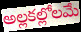
అల్లకల్లోలమే